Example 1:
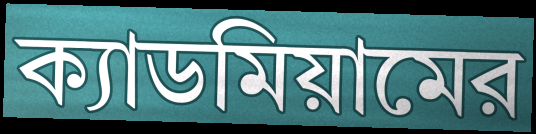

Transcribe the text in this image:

ক্যাডমিয়ামের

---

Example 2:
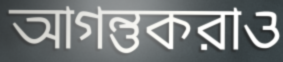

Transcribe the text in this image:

আগন্তুকরাও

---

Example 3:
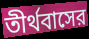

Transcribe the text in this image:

তীর্থবাসের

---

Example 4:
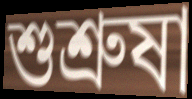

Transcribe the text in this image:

শুশ্রুষা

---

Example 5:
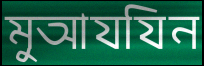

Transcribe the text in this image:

মুআযযিন